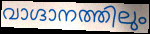
വാഗ്ദാനത്തിലും